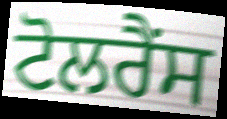
ਟੋਲਰੈਂਸ